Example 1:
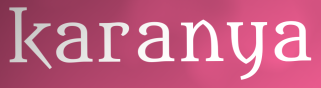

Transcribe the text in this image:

karanya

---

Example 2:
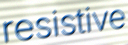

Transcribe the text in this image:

resistive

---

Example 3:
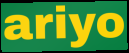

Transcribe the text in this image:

ariyo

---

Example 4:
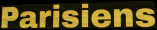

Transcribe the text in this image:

Parisiens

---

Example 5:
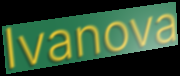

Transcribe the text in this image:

Ivanova